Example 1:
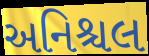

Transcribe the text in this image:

અનિશ્ચલ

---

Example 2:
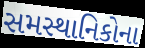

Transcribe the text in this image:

સમસ્થાનિકોના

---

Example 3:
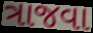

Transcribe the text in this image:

ત્રાજવા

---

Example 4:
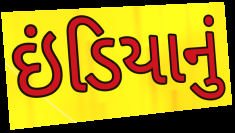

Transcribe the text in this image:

ઇંડિયાનું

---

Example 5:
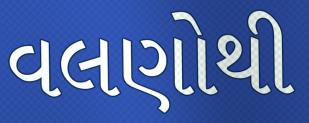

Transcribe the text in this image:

વલણોથી